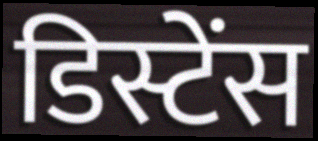
डिस्टेंस